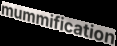
mummification